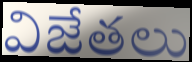
విజేతలు